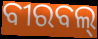
ବୀରବଲ୍